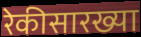
रेकीसारख्या